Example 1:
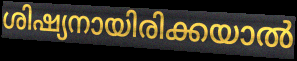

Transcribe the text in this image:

ശിഷ്യനായിരിക്കയാൽ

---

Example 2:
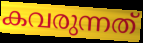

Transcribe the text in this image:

കവരുന്നത്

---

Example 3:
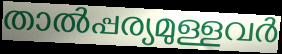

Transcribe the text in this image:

താൽപ്പര്യമുള്ളവർ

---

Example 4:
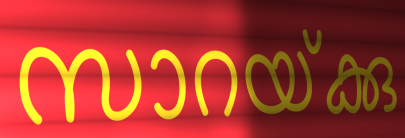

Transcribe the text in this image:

സാറയ്‌ക്കു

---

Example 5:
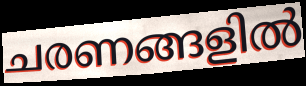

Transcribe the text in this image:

ചരണങ്ങളിൽ